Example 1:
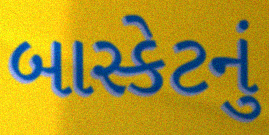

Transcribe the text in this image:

બાસ્કેટનું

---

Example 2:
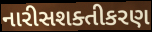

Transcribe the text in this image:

નારીસશક્તીકરણ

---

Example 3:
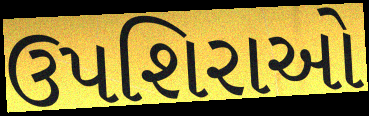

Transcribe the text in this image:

ઉપશિરાઓ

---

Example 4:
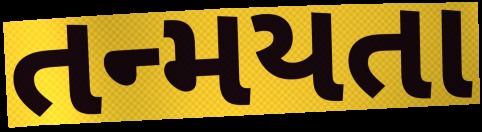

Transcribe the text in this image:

તન્મયતા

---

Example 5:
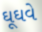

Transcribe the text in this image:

ઘૂઘવે